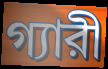
গ্যারী